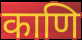
काणि